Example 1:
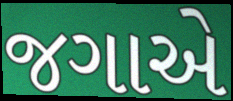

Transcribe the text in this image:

જગાએ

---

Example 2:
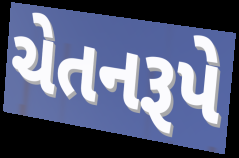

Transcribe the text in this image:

ચેતનરૂપે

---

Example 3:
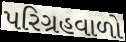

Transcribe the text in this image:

પરિગ્રહવાળો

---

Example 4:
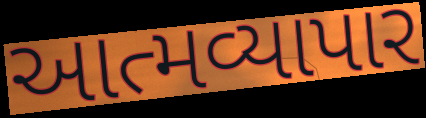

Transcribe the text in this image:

આત્મવ્યાપાર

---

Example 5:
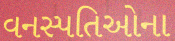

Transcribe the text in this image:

વનસ્પતિઓના